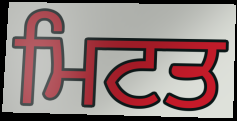
ਮਿਟਤ